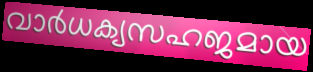
വാർധക്യസഹജമായ